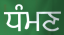
ਧੰਮਣ